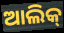
ଆଲିକ୍